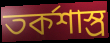
তর্কশাস্ত্র